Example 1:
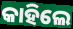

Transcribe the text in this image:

କାହିଲେ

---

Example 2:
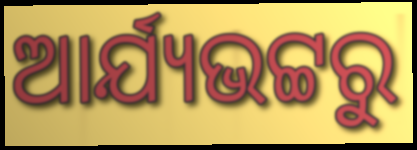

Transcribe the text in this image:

ଆର୍ଯ୍ୟଭଟ୍ଟରୁ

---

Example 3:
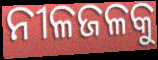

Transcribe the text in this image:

ନୀଳଜଳକୁ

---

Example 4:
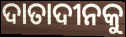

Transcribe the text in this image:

ଦାତାଦୀନକୁ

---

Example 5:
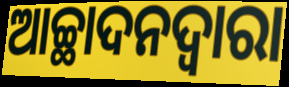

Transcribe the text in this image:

ଆଚ୍ଛାଦନଦ୍ୱାରା